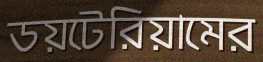
ডয়টেরিয়ামের